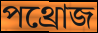
পথ্রোজ